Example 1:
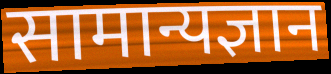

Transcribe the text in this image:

सामान्यज्ञान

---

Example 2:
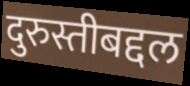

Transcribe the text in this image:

दुरुस्तीबद्दल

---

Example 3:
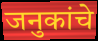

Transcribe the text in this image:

जनुकांचे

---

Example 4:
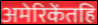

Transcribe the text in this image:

अमेरिकेंतहि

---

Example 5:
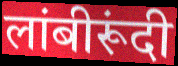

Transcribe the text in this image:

लांबीरूंदी